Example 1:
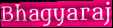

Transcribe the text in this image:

Bhagyaraj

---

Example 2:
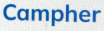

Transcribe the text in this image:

Campher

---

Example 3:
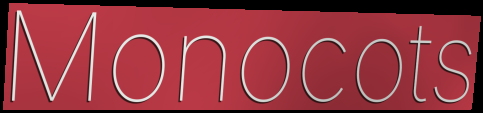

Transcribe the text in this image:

Monocots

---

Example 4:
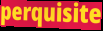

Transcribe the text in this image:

perquisite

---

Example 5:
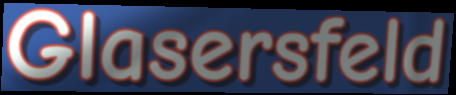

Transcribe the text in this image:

Glasersfeld